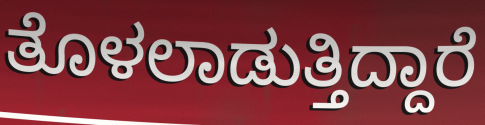
ತೊಳಲಾಡುತ್ತಿದ್ದಾರೆ